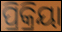
ପ୍ରିକ୍ରିୟା